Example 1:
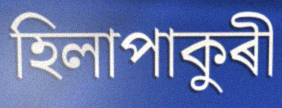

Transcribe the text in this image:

হিলাপাকুৰী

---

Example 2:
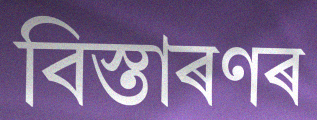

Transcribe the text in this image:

বিস্তাৰণৰ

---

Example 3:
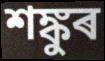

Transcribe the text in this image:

শঙ্কুৰ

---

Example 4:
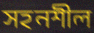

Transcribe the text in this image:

সহনশীল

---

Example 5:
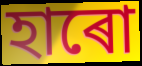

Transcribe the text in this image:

হাৰো